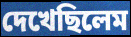
দেখেছিলেম